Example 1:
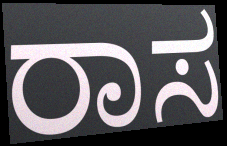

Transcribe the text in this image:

ರಾಸ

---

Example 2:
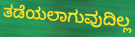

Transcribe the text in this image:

ತಡೆಯಲಾಗುವುದಿಲ್ಲ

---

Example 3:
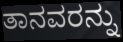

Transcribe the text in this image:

ತಾನವರನ್ನು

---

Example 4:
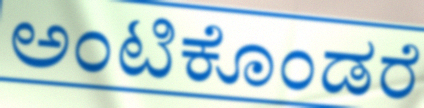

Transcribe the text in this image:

ಅಂಟಿಕೊಂಡರೆ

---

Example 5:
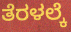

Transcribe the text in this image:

ತೆರಳಲ್ಕೆ